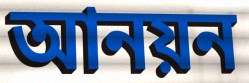
আনয়ন